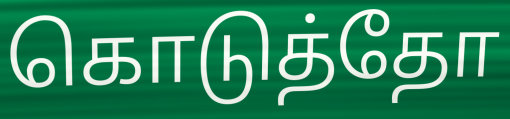
கொடுத்தோ